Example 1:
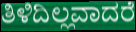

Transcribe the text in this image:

ತಿಳಿದಿಲ್ಲವಾದರೆ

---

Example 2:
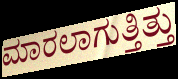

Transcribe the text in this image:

ಮಾರಲಾಗುತ್ತಿತ್ತು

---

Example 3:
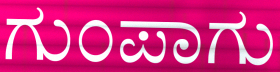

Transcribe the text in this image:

ಗುಂಪಾಗು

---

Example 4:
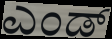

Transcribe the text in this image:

ಎಂಡ್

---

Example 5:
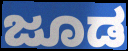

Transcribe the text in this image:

ಜೂಡ